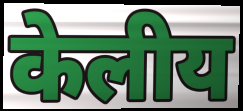
केलीय